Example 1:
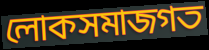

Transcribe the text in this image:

লোকসমাজগত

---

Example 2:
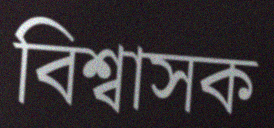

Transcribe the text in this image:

বিশ্বাসক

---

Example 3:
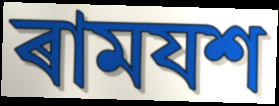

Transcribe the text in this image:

ৰামযশ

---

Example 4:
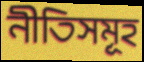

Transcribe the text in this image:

নীতিসমূহ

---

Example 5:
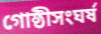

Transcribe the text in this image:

গোষ্ঠীসংঘৰ্ষ